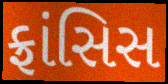
ફ્રાંસિસ